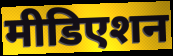
मीडिएशन